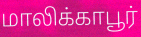
மாலிக்காபூர்